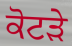
ਕੋਟੜੇ